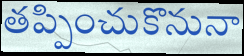
తప్పించుకొనునా